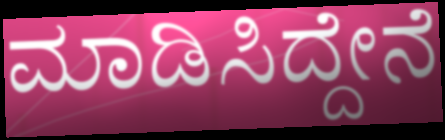
ಮಾಡಿಸಿದ್ದೇನೆ